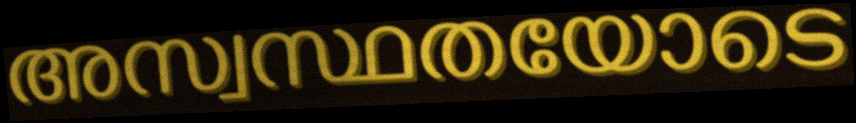
അസ്വസ്ഥതയോടെ